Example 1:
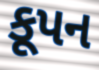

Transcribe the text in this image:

કૂપન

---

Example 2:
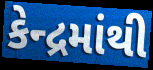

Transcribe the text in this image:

કેન્દ્રમાંથી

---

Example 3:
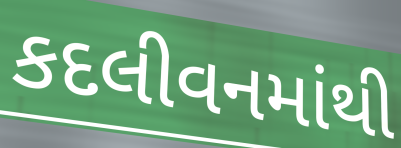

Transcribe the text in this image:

કદલીવનમાંથી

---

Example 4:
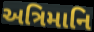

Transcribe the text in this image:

અત્રિમાનિ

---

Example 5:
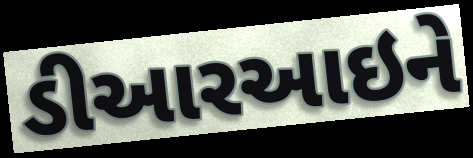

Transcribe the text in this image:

ડીઆરઆઇને